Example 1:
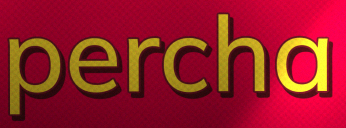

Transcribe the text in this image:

percha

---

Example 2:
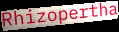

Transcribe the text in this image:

Rhizopertha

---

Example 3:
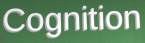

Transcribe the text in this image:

Cognition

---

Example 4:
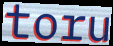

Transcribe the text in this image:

toru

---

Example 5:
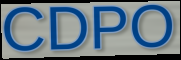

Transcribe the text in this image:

CDPO